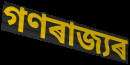
গণৰাজ্যৰ